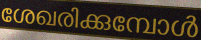
ശേഖരിക്കുമ്പോൾ